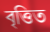
বৃত্তিত